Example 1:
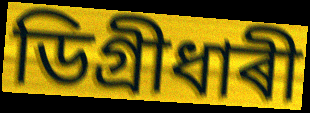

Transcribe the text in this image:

ডিগ্ৰীধাৰী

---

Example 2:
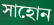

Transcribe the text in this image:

সাহোন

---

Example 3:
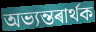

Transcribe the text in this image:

অভ্যন্তৰাৰ্থক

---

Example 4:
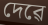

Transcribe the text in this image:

দেৱে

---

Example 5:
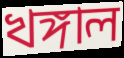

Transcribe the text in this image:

খঙ্গাল